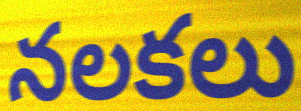
నలకలు